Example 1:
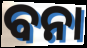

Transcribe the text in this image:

ବନା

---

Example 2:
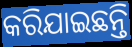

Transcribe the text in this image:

କରିଯାଇଛନ୍ତି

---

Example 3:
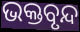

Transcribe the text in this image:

ଭକ୍ତବୃନ୍ଦ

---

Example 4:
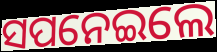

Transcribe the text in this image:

ସପନେଇଲେ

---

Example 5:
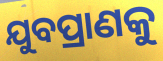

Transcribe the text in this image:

ଯୁବପ୍ରାଣକୁ